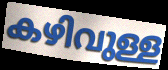
കഴിവുള്ള